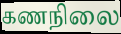
கணநிலை